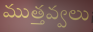
ముత్తవ్వలు